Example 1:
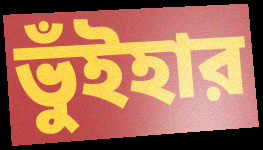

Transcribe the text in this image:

ভুঁইহার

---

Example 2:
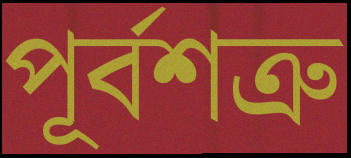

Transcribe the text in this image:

পূর্বশত্রু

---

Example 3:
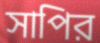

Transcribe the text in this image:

সাপির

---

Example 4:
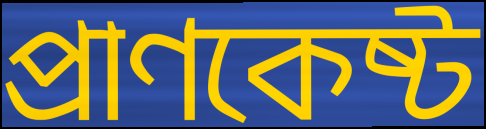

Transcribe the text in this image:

প্রাণকেষ্ট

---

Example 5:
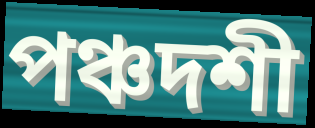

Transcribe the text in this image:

পঞ্চদশী